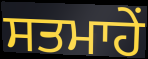
ਸਤਮਾਹੇਂ